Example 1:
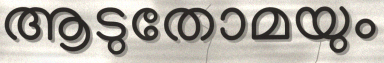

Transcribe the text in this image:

ആടുതോമയും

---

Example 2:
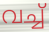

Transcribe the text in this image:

വച്ച്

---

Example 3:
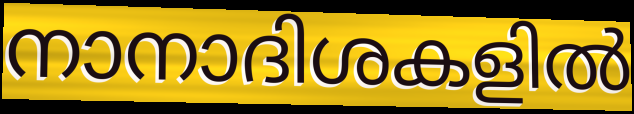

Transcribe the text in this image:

നാനാദിശകളിൽ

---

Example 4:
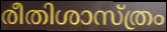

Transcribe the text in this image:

രീതിശാസ്ത്രം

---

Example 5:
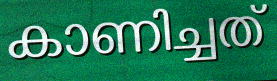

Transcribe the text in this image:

കാണിച്ചത്